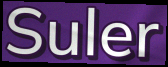
Suler